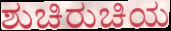
ಶುಚಿರುಚಿಯ